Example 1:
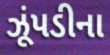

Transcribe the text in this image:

ઝૂંપડીના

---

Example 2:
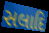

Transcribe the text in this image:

સલાદિ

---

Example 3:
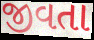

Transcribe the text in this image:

જીવતા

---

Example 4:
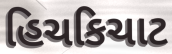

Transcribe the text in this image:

હિચકિચાટ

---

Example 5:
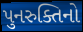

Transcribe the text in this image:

પુનરુક્તિનો